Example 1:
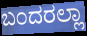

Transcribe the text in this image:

ಬಂದರಲ್ಲಾ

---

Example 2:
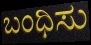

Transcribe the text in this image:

ಬಂಧಿಸು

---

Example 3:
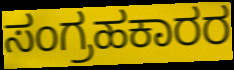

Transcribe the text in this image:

ಸಂಗ್ರಹಕಾರರ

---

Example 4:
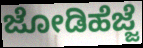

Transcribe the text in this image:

ಜೋಡಿಹೆಜ್ಜೆ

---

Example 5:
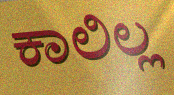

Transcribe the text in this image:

ಕಾಲಿಲ್ಲ